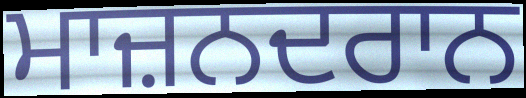
ਮਾਜ਼ਨਦਰਾਨ